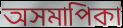
অসমাপিকা